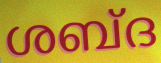
ശബ്‌ദ